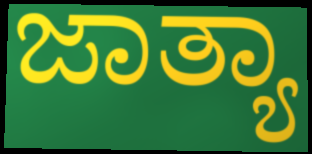
ಜಾತ್ಯಾ